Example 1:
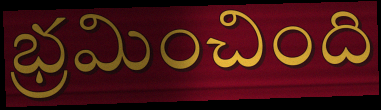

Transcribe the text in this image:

భ్రమించింది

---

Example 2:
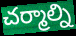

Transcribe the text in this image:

చర్మాల్ని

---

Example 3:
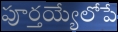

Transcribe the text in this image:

పూర్తయ్యేలోపే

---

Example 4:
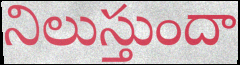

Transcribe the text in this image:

నిలుస్తుందా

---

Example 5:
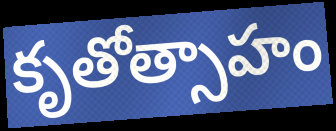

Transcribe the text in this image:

కృతోత్సాహం